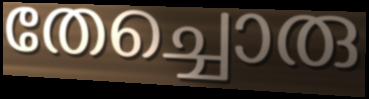
തേച്ചൊരു